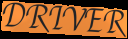
DRIVER